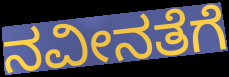
ನವೀನತೆಗೆ